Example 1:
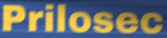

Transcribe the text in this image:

Prilosec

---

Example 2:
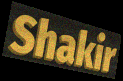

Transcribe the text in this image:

Shakir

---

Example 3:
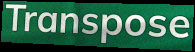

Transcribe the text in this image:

Transpose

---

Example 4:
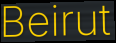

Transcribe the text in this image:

Beirut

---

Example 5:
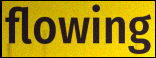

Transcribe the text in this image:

flowing